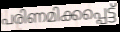
പരിണമിക്കപ്പെട്ട്